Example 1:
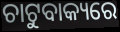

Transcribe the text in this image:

ଚାଟୁବାକ୍ୟରେ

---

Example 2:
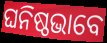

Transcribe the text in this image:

ଘନିଷ୍ଠଭାବେ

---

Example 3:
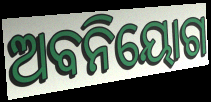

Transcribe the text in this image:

ଅବନିୟୋଗ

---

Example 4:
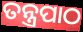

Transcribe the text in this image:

ତନ୍ତ୍ରପାଠ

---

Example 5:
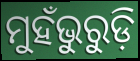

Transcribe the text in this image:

ମୁହଁଭୁରୁଡ଼ି